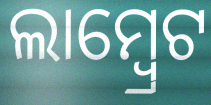
ଲାମ୍ୱ୍ରେଟ